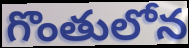
గొంతులోన